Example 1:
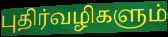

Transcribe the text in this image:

புதிர்வழிகளும்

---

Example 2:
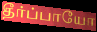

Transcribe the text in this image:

தீர்ப்பாயோ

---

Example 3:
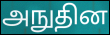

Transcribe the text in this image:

அநுதின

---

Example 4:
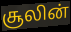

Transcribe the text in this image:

சூலின்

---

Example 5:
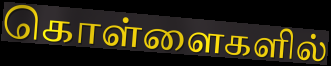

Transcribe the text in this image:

கொள்ளைகளில்